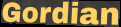
Gordian